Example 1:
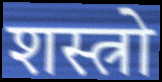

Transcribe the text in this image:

शस्त्रो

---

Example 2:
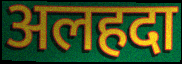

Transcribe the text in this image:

अलहदा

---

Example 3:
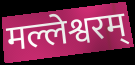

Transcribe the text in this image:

मल्लेश्वरम्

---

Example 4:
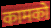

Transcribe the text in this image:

कामको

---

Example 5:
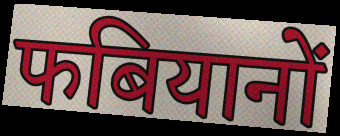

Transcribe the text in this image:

फबियानों